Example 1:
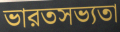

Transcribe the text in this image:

ভারতসভ্যতা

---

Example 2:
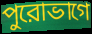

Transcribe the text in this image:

পুরোভাগে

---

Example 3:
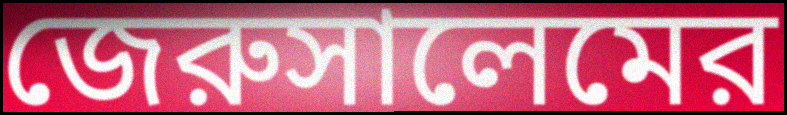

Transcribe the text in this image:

জেরুসালেমের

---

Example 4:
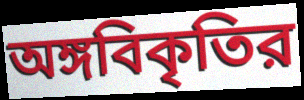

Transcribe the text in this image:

অঙ্গবিকৃতির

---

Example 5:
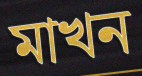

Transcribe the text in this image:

মাখন